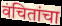
वंचितांचा